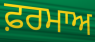
ਫ਼ਰਮਾਅ